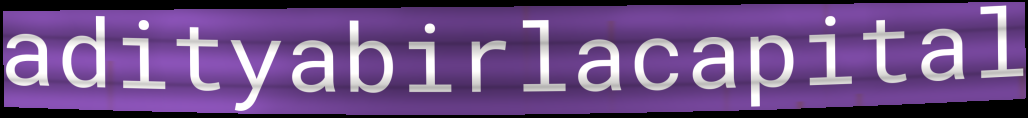
adityabirlacapital